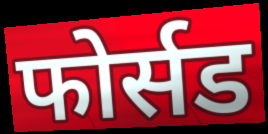
फोर्सड